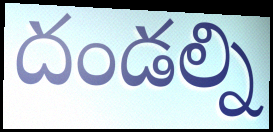
దండల్ని